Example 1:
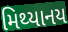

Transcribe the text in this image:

મિથ્યાનય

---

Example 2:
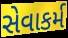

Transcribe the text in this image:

સેવાકર્મ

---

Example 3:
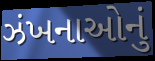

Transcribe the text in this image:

ઝંખનાઓનું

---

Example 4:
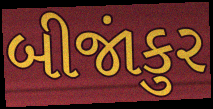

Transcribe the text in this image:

બીજાંકુર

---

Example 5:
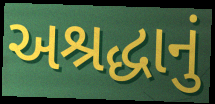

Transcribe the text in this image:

અશ્રદ્ધાનું